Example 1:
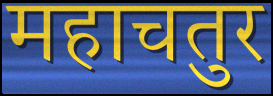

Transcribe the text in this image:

महाचतुर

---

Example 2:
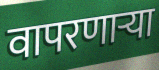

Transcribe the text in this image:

वापरणाऱ्या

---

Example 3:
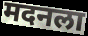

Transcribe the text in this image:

मदनला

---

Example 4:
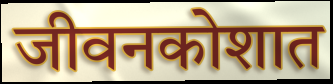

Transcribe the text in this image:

जीवनकोशात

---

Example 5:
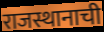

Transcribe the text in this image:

राजस्थानाची